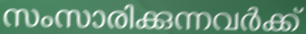
സംസാരിക്കുന്നവർക്ക്